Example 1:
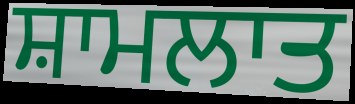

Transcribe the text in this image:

ਸ਼ਾਮਲਾਤ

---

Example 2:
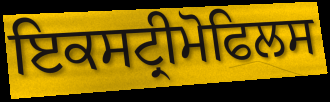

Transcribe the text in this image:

ਇਕਸਟ੍ਰੀਮੋਫਿਲਸ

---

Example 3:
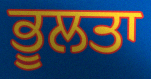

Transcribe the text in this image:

ਭੂਲਤਾ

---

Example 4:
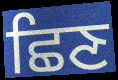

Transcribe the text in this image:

ਛਿਣ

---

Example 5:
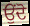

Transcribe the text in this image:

ਉਂਦੋ